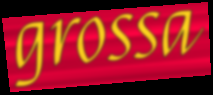
grossa